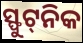
ସ୍ଫୁଟ୍‌ନିକ